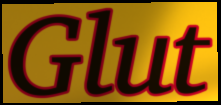
Glut